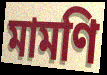
মামণি